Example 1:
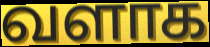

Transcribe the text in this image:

வளாக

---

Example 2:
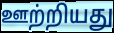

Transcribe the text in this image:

ஊற்றியது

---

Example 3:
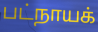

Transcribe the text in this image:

பட்நாயக்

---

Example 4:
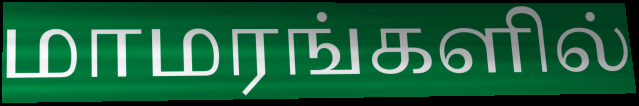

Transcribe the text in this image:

மாமரங்களில்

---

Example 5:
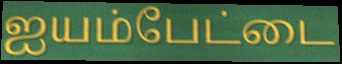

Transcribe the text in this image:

ஐயம்பேட்டை